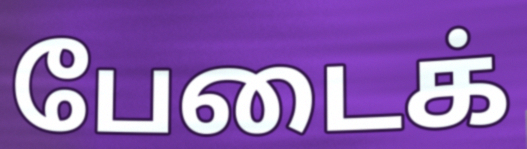
பேடைக்